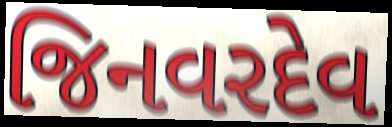
જિનવરદેવ